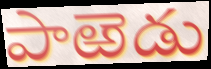
పాఱెడు